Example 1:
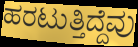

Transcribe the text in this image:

ಹರಟುತ್ತಿದ್ದೆವು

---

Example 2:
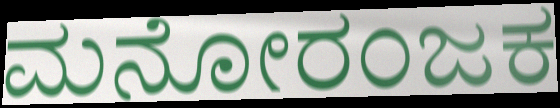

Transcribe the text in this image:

ಮನೋರಂಜಕ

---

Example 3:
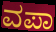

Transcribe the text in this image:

ವಪಾ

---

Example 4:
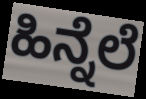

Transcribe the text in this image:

ಹಿನ್ನೆಲೆ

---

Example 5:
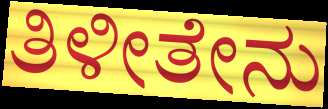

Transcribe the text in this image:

ತಿಳೀತೇನು